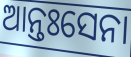
ଆନ୍ତଃସେନା